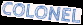
COLONEL